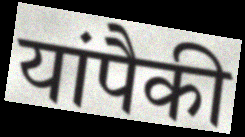
यांपैकी